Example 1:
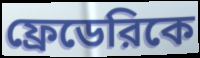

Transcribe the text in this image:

ফ্রেডেরিকে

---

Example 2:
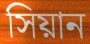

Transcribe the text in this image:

সিয়ান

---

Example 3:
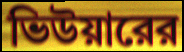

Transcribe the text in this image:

ভিউয়ারের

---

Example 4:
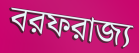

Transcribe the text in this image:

বরফরাজ্য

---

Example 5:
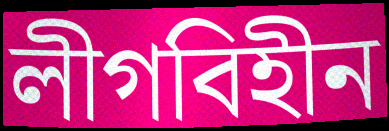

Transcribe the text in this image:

লীগবিহীন